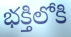
భక్తిలోకి